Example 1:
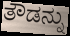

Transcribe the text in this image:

ತೌಡನ್ನು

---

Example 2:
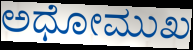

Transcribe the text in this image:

ಅಧೋಮುಖ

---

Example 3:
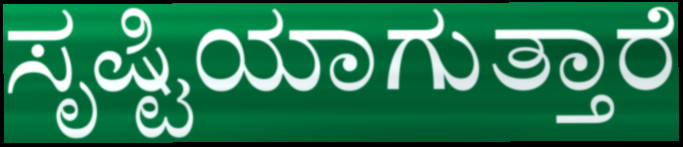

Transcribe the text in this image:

ಸೃಷ್ಟಿಯಾಗುತ್ತಾರೆ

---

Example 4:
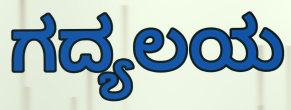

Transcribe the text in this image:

ಗದ್ಯಲಯ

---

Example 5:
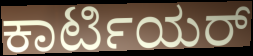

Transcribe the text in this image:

ಕಾರ್ಟಿಯರ್